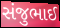
સંજુભાઈ